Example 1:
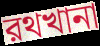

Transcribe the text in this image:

রথখানা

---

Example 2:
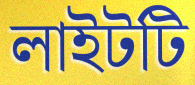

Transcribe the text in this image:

লাইটটি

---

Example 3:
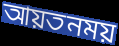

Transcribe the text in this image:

আয়তনময়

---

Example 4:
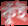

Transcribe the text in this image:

কুঁই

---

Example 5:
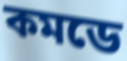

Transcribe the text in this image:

কমডে